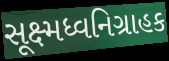
સૂક્ષ્મધ્વનિગ્રાહક